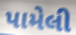
પામેલી